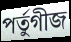
পর্তুগীজ